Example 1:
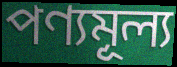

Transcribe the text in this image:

পণ্যমূল্য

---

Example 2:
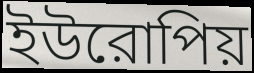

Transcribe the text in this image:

ইউরোপিয়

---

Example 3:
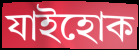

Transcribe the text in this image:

যাইহোক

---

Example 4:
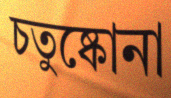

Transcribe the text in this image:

চতুষ্কোনা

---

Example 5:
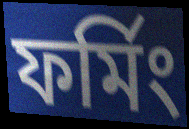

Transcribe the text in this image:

ফর্মিং